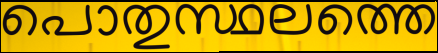
പൊതുസ്ഥലത്തെ